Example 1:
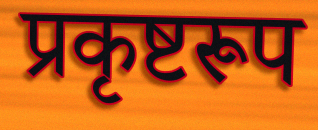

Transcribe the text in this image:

प्रकृष्टरूप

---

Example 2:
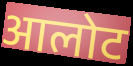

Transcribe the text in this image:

आलोट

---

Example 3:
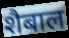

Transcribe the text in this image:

शैबाल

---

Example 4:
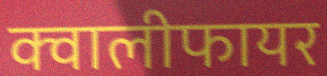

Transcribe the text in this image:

क्‍वालीफायर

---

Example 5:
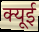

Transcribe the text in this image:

क्यूई